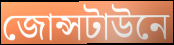
জোন্সটাউনে